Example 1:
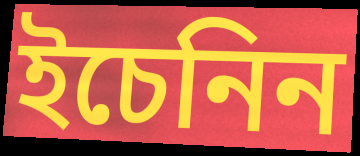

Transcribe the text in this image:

ইচেনিন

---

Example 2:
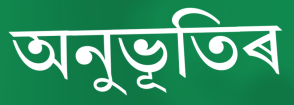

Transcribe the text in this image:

অনুভূতিৰ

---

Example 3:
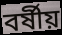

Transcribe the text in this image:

বৰ্ষীয়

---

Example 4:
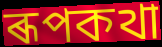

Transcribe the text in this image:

ৰূপকথা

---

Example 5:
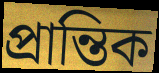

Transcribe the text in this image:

প্ৰান্তিক